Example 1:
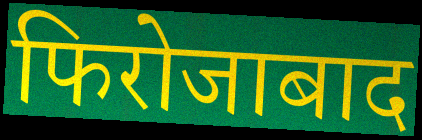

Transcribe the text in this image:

फिरोजाबाद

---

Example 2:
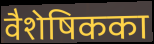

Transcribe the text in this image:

वैशेषिकका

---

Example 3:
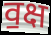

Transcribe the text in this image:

व॒क्ष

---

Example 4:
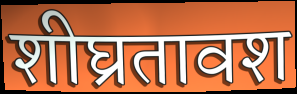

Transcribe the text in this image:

शीघ्रतावश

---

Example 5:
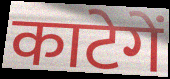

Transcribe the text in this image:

काटेगें